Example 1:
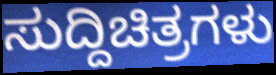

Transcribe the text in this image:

ಸುದ್ದಿಚಿತ್ರಗಳು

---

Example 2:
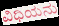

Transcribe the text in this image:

ವಿಧಿಯನು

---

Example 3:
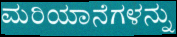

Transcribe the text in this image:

ಮರಿಯಾನೆಗಳನ್ನು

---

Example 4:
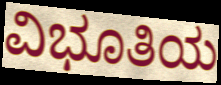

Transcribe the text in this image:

ವಿಭೂತಿಯ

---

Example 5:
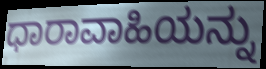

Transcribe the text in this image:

ಧಾರಾವಾಹಿಯನ್ನು